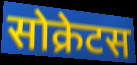
सोक्रेटस